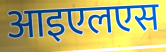
आइएलएस